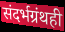
संदर्भग्रंथही